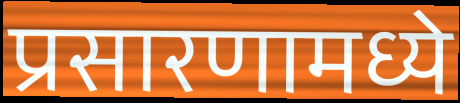
प्रसारणामध्ये